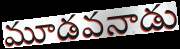
మూడవనాడు